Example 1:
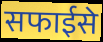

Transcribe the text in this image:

सफाईसे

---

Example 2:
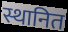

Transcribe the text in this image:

स्थानित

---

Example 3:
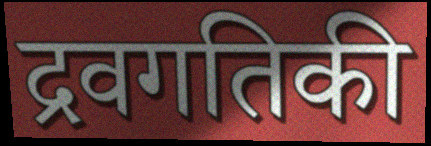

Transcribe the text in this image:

द्रवगतिकी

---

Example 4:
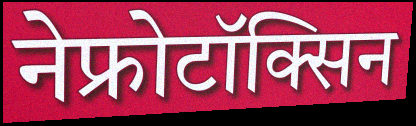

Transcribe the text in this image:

नेफ्रोटॉक्सिन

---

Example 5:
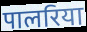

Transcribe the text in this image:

पालरिया